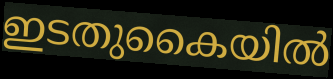
ഇടതുകൈയിൽ